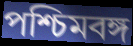
পশ্চিমবঙ্গ